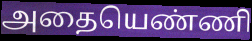
அதையெண்ணி